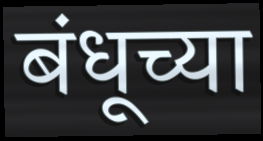
बंधूच्या